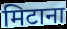
मिटाना